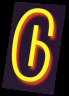
டு